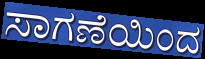
ಸಾಗಣೆಯಿಂದ